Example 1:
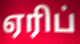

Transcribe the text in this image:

ஏரிப்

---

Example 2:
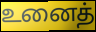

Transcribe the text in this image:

உனைத்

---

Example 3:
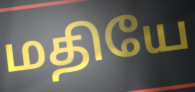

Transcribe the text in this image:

மதியே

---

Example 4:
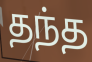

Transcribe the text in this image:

தந்த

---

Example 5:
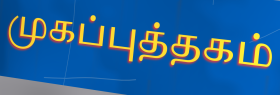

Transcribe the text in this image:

முகப்புத்தகம்